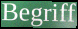
Begriff